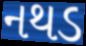
નથડ